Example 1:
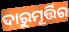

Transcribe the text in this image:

ଦାରୁମୂର୍ତ୍ତିର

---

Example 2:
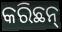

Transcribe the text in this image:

କରିଛନ୍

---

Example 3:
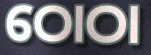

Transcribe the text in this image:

ଠୋଠା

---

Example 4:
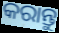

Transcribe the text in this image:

କରାନ୍ତୁ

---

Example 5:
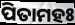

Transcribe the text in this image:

ପିତାମହଃ